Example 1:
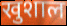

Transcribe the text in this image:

खुशाल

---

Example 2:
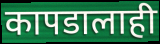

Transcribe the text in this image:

कापडालाही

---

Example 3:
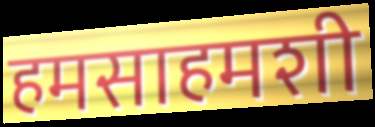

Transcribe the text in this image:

हमसाहमशी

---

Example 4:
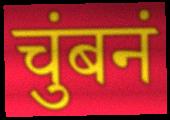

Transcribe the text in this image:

चुंबनं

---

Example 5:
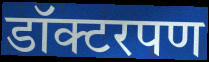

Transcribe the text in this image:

डॉक्टरपण